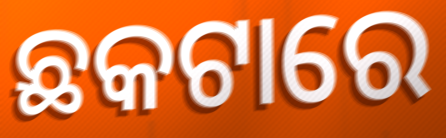
ଛକଟାରେ